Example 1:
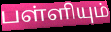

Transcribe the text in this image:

பள்ளியும்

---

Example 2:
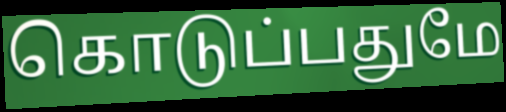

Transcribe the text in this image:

கொடுப்பதுமே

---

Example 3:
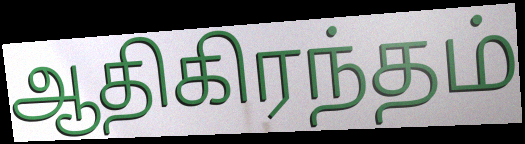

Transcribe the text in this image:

ஆதிகிரந்தம்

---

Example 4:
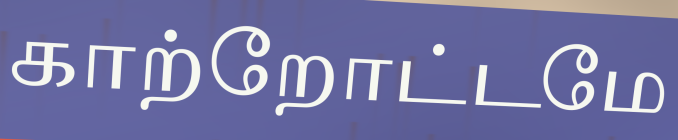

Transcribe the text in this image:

காற்றோட்டமே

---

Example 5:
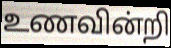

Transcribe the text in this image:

உணவின்றி